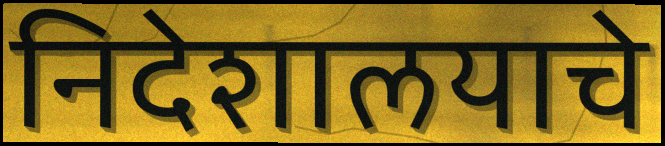
निदेशालयाचे